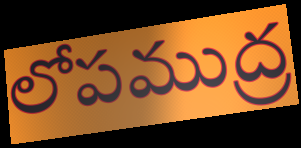
లోపముద్ర